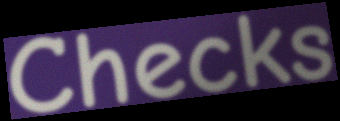
Checks